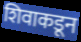
शिवाकडून